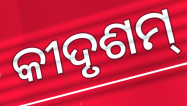
କୀଦୃଶମ୍